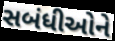
સબંધીઓને